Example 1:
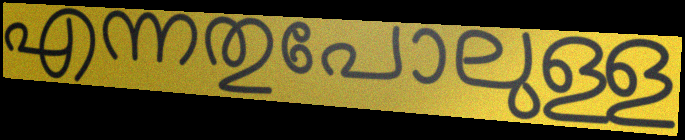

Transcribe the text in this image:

എന്നതുപോലുള്ള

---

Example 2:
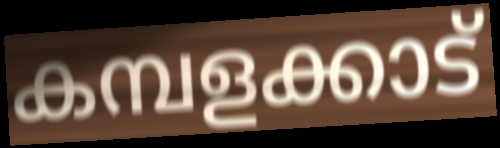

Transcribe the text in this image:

കമ്പളക്കാട്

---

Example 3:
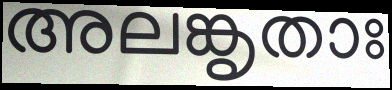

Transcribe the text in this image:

അലങ്കൃതാഃ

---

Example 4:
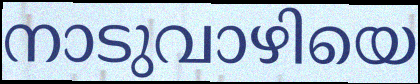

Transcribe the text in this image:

നാടുവാഴിയെ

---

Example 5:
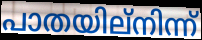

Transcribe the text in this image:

പാതയില്നിന്ന്